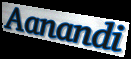
Aanandi